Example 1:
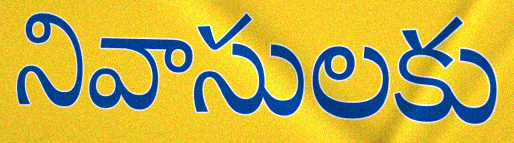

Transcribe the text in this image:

నివాసులకు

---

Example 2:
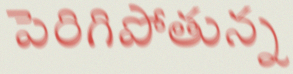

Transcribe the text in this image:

పెరిగిపోతున్న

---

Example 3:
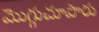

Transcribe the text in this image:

మొగ్గుచూపారు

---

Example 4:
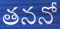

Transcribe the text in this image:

తననో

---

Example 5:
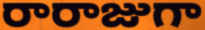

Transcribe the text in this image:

రారాజుగా